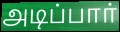
அடிப்பார்